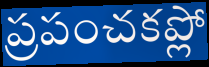
ప్రపంచకప్లో